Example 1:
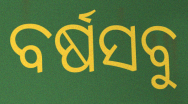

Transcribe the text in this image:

ବର୍ଷସବୁ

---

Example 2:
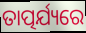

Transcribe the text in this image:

ତାତ୍ପର୍ଯ୍ୟରେ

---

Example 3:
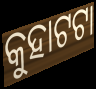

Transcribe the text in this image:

କୁହାଟଟା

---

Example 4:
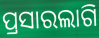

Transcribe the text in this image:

ପ୍ରସାରଲାଗି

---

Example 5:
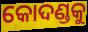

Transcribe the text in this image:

କୋଦଣ୍ଡକୁ